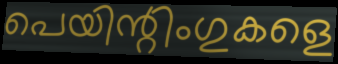
പെയിന്റിംഗുകളെ